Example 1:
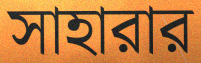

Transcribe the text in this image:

সাহারার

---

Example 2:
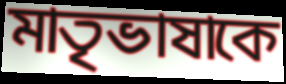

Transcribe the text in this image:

মাতৃভাষাকে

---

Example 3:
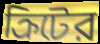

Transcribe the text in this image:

ক্রিটের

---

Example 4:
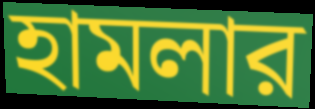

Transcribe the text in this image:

হামলার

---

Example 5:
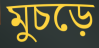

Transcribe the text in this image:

মুচড়ে